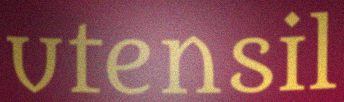
utensil